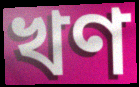
খণ